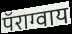
पॅराग्वाय